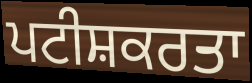
ਪਟੀਸ਼ਕਰਤਾ